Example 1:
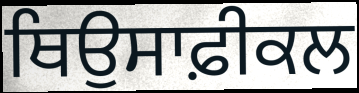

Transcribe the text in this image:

ਥਿਉਸਾਫ਼ੀਕਲ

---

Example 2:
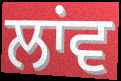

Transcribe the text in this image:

ਲਾਂਵ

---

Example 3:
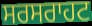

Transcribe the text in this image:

ਸਰਸਰਾਹਟ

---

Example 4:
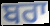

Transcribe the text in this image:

ਬਰਾ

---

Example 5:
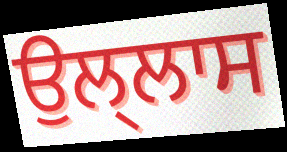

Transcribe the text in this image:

ਉਲ੍ਲਾਸ